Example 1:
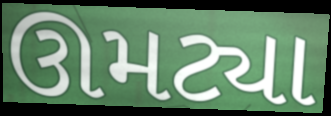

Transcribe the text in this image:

ઊમટ્યા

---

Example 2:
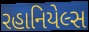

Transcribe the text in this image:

રહાનિયેલ્સ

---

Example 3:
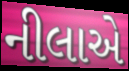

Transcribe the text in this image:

નીલાએ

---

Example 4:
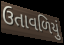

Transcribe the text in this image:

ઉતાવળિયું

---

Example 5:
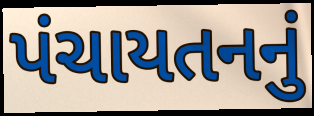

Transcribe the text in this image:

પંચાયતનનું